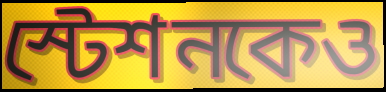
স্টেশনকেও